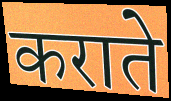
कराते